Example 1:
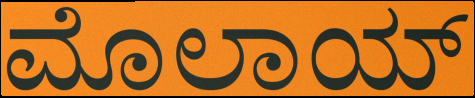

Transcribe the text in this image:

ಮೊಲಾಯ್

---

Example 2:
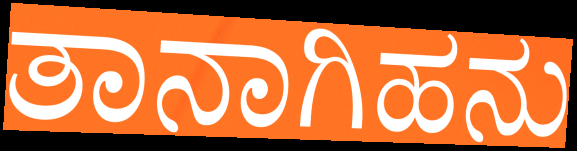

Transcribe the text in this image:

ತಾನಾಗಿಹನು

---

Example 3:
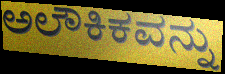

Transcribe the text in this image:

ಅಲೌಕಿಕವನ್ನು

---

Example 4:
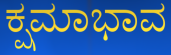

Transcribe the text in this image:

ಕ್ಷಮಾಭಾವ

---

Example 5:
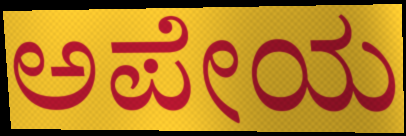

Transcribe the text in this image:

ಅಪೇಯ